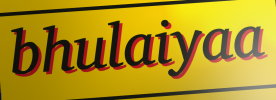
bhulaiyaa